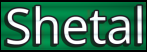
Shetal